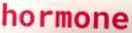
hormone